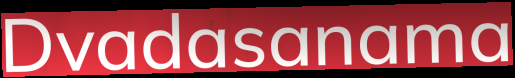
Dvadasanama